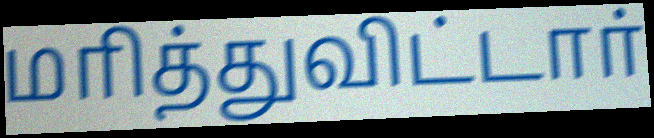
மரித்துவிட்டார்